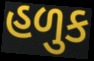
હળુક